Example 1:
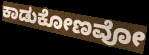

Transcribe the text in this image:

ಕಾಡುಕೋಣವೋ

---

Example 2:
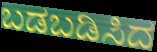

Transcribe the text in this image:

ಬಡಬಡಿಸಿದ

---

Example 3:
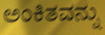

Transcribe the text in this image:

ಅಂಕಿತವನ್ನು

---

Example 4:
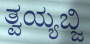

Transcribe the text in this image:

ತ್ವಯ್ಯಬ್ಜಿ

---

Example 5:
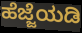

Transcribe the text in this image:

ಹೆಜ್ಜೆಯಡಿ